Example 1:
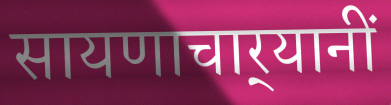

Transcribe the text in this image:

सायणाचार्यानीं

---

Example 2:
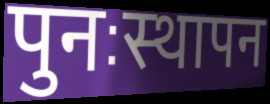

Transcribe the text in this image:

पुनःस्थापन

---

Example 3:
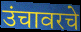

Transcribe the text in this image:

उंचावरचे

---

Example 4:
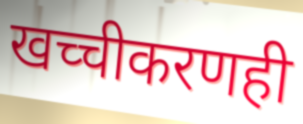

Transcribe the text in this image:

खच्चीकरणही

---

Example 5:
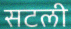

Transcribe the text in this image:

सटली